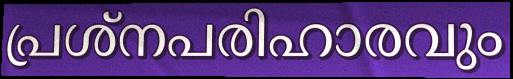
പ്രശ്നപരിഹാരവും